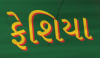
ફેશિયા